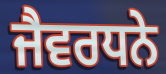
ਜੈਵਰਧਨੇ